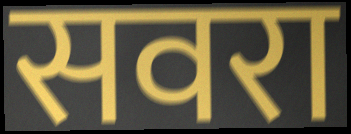
सवरा